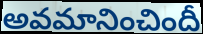
అవమానించిందీ